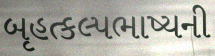
બૃહત્કલ્પભાષ્યની